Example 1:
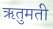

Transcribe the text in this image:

ऋतुमती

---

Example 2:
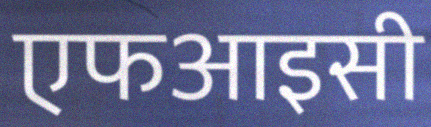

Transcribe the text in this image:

एफआइसी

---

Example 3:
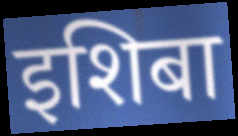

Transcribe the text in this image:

इशिबा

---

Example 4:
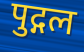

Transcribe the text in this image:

पुद्गल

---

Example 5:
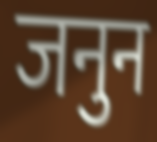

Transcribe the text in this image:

जनुन